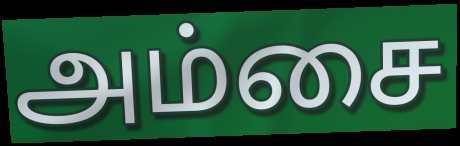
அம்சை